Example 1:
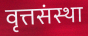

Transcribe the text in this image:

वृत्तसंस्था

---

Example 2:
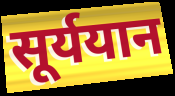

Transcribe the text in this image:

सूर्ययान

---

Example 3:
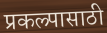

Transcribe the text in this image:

प्रकल्पासाठी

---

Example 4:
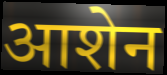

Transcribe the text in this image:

आशेन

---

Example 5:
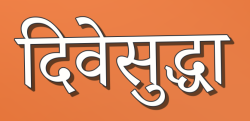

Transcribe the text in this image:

दिवेसुद्धा